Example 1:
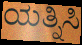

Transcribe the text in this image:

ಯತ್ನಿಸಿ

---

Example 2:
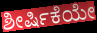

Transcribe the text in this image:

ಶೀರ್ಷಿಕೆಯೇ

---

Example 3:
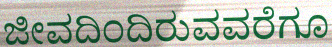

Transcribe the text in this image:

ಜೀವದಿಂದಿರುವವರೆಗೂ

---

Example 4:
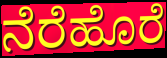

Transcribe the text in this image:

ನೆರೆಹೊರೆ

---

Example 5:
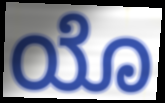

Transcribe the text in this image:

ಯೊ